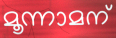
മൂന്നാമന്